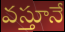
వస్తూనే